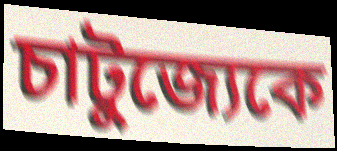
চাটুজ্যেকে